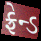
ફ્રેન્ડ